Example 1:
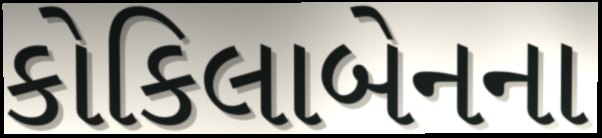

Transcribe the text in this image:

કોકિલાબેનના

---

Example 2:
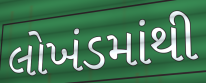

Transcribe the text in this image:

લોખંડમાંથી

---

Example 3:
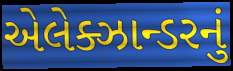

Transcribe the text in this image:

એલેક્ઝાન્ડરનું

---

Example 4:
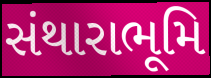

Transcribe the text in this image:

સંથારાભૂમિ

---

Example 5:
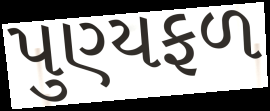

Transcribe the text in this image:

પુણ્યફળ